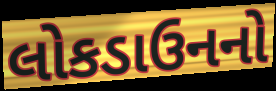
લોકડાઉનનો